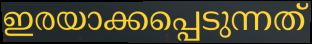
ഇരയാക്കപ്പെടുന്നത്